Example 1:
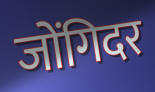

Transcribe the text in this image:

जोंगिदर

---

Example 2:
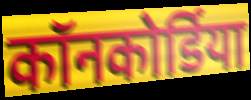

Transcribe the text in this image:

कॉनकोर्डिया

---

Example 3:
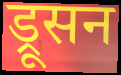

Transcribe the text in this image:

ड्रूसन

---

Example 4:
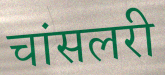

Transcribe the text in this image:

चांसलरी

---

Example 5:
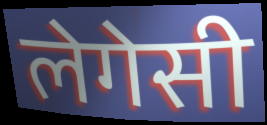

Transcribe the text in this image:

लेगेसी